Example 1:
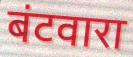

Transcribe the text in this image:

बंटवारा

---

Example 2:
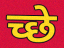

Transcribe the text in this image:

च्छे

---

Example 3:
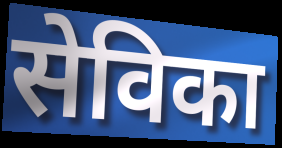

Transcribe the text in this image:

सेविका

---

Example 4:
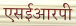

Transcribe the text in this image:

एसईआरपी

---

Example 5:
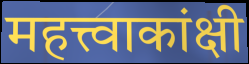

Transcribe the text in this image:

महत्त्वाकांक्षी